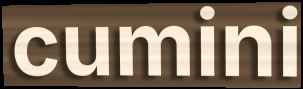
cumini